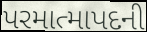
પરમાત્માપદની